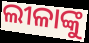
ଲୀଳାଙ୍କୁ